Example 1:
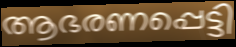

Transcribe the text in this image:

ആഭരണപ്പെട്ടി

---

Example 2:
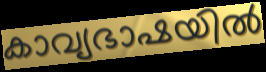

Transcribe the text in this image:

കാവ്യഭാഷയിൽ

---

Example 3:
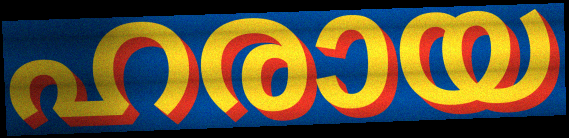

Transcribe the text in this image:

ഹരായ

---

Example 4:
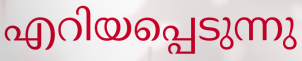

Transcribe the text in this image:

എറിയപ്പെടുന്നു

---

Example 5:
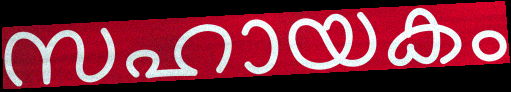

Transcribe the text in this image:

സഹായകം